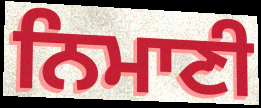
ਨਿਮਾਣੀ